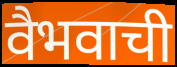
वैभवाची